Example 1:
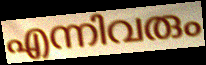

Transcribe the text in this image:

എന്നിവരും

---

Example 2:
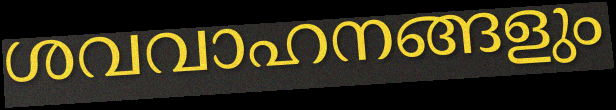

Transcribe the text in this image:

ശവവാഹനങ്ങളും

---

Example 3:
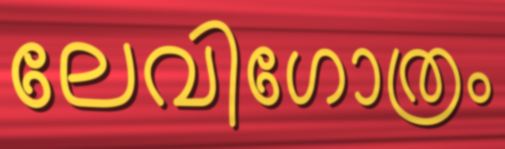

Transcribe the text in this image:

ലേവിഗോത്രം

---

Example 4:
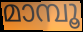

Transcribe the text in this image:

മാമ്പൂ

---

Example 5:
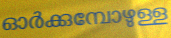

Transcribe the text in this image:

ഓർക്കുമ്പോഴുള്ള